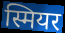
स्मियर